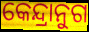
କେନ୍ଦ୍ରାନୁଗ